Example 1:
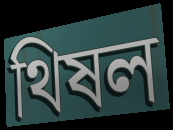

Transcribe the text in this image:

থিষল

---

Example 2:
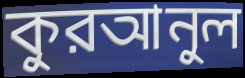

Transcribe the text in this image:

কুরআনুল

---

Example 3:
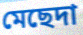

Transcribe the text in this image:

মেছেদা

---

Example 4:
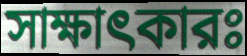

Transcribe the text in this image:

সাক্ষাৎকারঃ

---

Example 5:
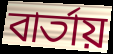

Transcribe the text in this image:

বার্তায়